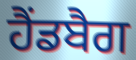
ਹੈਂਡਬੈਗ